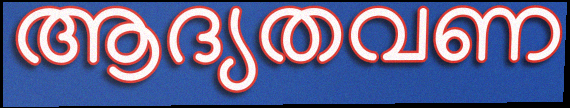
ആദ്യതവണ